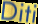
Diti